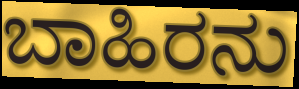
ಬಾಹಿರನು